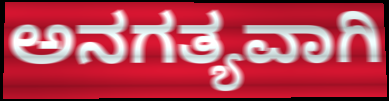
ಅನಗತ್ಯವಾಗಿ